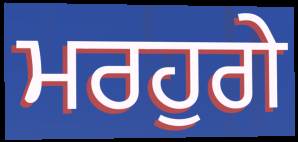
ਮਰਹੁਗੇ